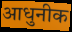
आधुनीक